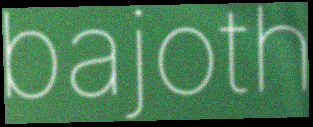
bajoth